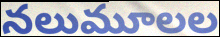
నలుమూలల